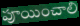
పూయించాలి